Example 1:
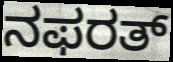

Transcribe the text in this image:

ನಫರತ್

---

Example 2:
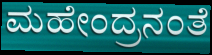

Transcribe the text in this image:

ಮಹೇಂದ್ರನಂತೆ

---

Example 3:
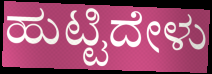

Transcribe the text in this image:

ಹುಟ್ಟಿದೇಳು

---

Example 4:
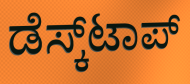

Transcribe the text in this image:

ಡೆಸ್ಕ್‌ಟಾಪ್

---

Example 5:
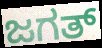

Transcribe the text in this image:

ಜಗತ್